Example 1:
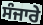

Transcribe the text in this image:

ਸੰਜਾਰੇ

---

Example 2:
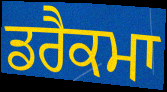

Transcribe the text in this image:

ਡਰੈਕਮਾ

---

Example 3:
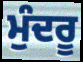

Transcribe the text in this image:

ਮੁੰਦਰੂ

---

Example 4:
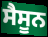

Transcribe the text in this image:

ਸੈਸੂਨ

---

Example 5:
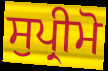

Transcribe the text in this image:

ਸੁਪ੍ਰੀਮੋ